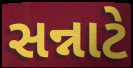
સન્નાટે